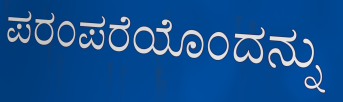
ಪರಂಪರೆಯೊಂದನ್ನು